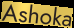
Ashoka